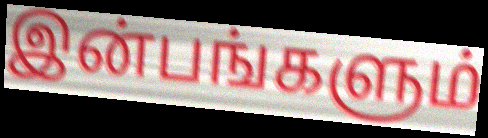
இன்பங்களும்